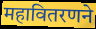
महावितरणने